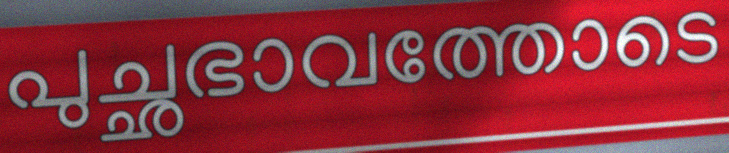
പുച്ഛഭാവത്തോടെ